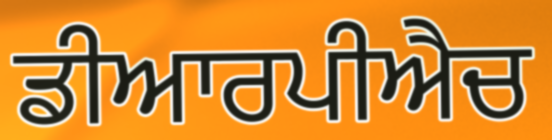
ਡੀਆਰਪੀਐਚ